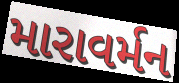
મારાવર્મન